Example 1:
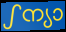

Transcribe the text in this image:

ഽന്യാ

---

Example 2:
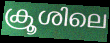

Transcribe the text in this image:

ക്രൂശിലെ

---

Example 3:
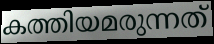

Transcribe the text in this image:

കത്തിയമരുന്നത്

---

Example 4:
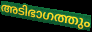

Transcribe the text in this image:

അടിഭാഗത്തും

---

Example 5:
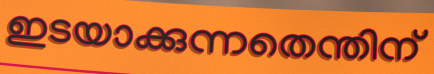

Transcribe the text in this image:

ഇടയാക്കുന്നതെന്തിന്